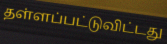
தள்ளப்பட்டுவிட்டது